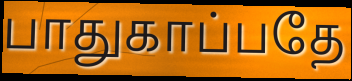
பாதுகாப்பதே